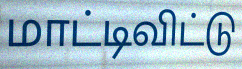
மாட்டிவிட்டு